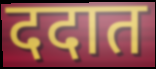
ददात